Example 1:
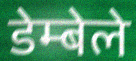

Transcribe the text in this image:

डेम्बेले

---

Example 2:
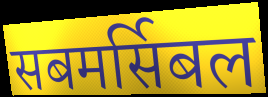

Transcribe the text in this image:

सबमर्सिबल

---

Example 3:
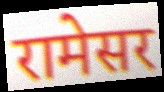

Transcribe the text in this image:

रामेसर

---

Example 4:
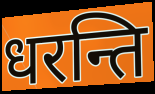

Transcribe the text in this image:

धरन्ति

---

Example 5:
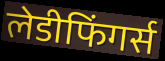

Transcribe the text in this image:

लेडीफिंगर्स